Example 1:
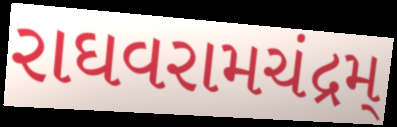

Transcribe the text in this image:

રાઘવરામચંદ્રમ્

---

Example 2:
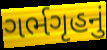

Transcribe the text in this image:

ગર્ભગૃહનું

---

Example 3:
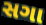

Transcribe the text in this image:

સગા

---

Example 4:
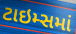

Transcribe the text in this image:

ટાઇમ્સમાં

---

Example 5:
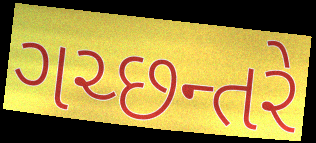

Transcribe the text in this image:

ગચ્છન્તરે